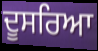
ਦੂਸਰਿਆ